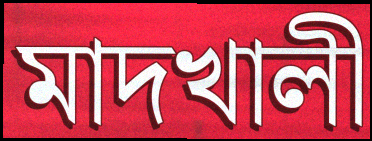
মাদখালী